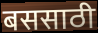
बससाठी